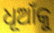
ଧୂଆଁକୁ